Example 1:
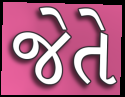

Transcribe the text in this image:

જેતે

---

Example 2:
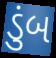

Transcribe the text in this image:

ડુંબ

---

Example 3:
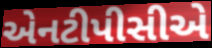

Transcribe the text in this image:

એનટીપીસીએ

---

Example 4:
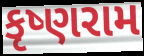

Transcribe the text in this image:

કૃષ્ણરામ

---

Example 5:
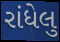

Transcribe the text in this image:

રાંધેલુ